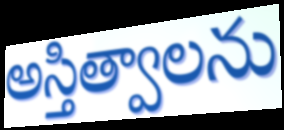
అస్తిత్వాలను